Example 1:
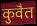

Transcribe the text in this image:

कुवैत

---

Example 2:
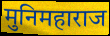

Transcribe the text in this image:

मुनिमहाराज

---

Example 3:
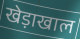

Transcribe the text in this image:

खेड़ाखाल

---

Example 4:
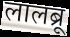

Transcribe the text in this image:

लालब्रू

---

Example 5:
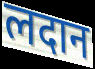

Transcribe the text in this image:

लदान